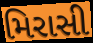
મિરાસી